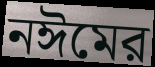
নঈমের